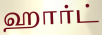
ஹார்ட்